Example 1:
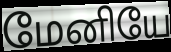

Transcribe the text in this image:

மேனியே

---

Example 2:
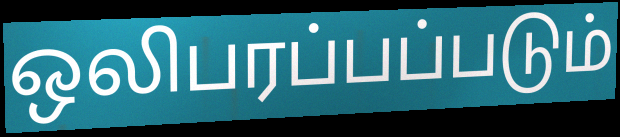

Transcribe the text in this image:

ஒலிபரப்பப்படும்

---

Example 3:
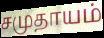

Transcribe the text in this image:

சமுதாயம்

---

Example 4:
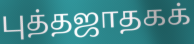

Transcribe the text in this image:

புத்தஜாதகக்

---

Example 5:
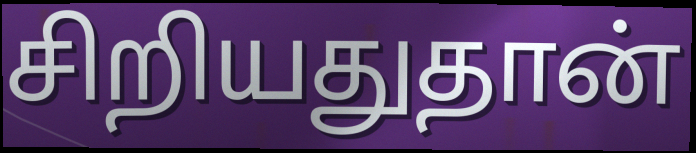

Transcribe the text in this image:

சிறியதுதான்